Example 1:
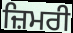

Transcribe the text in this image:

ਜ਼ਿਮਰੀ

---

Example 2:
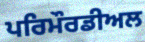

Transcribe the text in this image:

ਪਰਿਮੌਰਡੀਅਲ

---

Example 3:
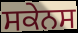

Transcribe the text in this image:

ਸਕੇਨਸ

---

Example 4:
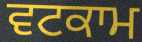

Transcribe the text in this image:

ਵਟਕਾਮ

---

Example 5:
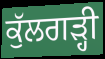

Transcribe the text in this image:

ਕੁੱਲਗੜ੍ਹੀ